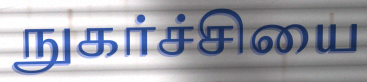
நுகர்ச்சியை